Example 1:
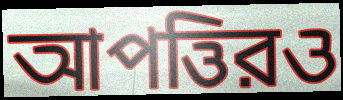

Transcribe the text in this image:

আপত্তিরও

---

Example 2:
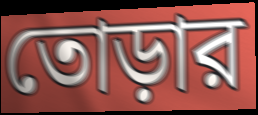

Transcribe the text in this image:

তোড়ার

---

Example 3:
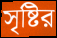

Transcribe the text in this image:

সৃষ্টির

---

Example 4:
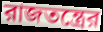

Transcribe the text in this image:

রাজতন্ত্রের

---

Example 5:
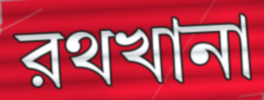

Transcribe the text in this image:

রথখানা